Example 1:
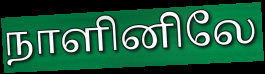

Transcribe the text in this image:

நாளினிலே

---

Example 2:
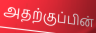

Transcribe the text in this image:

அதற்குப்பின்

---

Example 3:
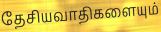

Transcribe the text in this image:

தேசியவாதிகளையும்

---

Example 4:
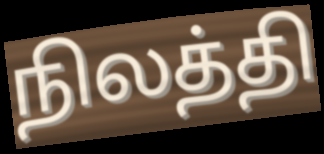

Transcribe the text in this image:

நிலத்தி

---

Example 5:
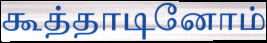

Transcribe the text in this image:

கூத்தாடினோம்